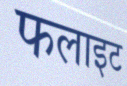
फलाइट